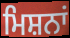
ਮਿਸ਼ਨਾਂ